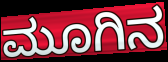
ಮೂಗಿನ